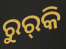
ରୁର୍‍କି